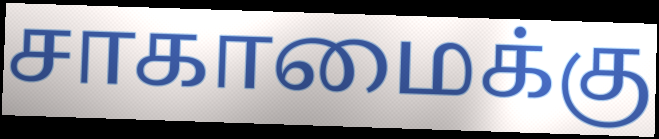
சாகாமைக்கு